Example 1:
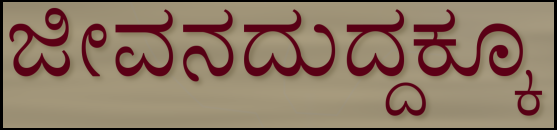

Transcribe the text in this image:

ಜೀವನದುದ್ದಕ್ಕೂ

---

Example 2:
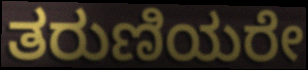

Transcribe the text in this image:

ತರುಣಿಯರೇ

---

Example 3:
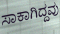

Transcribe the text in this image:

ಸಾಕಾಗಿದ್ದವು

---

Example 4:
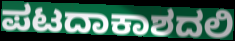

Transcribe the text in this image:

ಪಟದಾಕಾಶದಲಿ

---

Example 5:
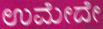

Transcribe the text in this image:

ಉಮೇದೇ